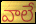
వాలే